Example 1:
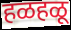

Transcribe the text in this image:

हळहळू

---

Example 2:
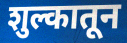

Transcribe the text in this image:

शुल्कातून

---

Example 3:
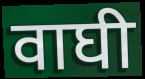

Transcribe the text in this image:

वाघी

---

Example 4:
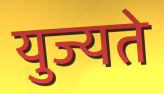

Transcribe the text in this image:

युज्यते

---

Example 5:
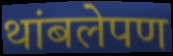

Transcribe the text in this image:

थांबलेपण